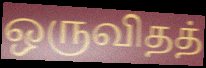
ஒருவிதத்